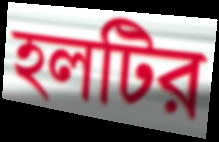
হলটির